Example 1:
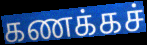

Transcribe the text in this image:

கணக்கச்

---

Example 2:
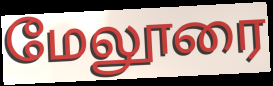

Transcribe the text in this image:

மேலூரை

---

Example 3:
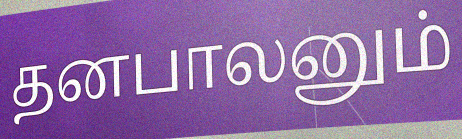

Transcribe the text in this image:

தனபாலனும்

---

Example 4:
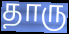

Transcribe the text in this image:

தாரு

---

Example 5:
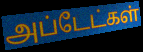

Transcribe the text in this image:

அப்டேட்கள்